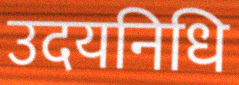
उदयनिधि